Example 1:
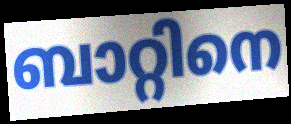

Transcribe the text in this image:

ബാറ്റിനെ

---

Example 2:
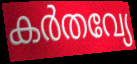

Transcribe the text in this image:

കർതവ്യേ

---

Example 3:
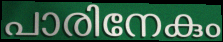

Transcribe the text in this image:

പാരിനേകും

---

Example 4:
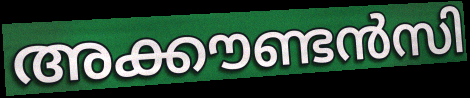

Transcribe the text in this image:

അക്കൗണ്ടൻസി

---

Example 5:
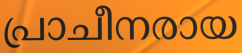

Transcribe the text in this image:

പ്രാചീനരായ